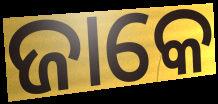
ଜାକେ